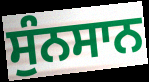
ਸੁੰਨਸਾਨ